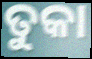
ତୁକା